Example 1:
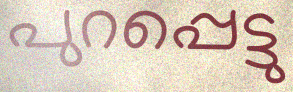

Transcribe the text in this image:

പുറപ്പെട്ടു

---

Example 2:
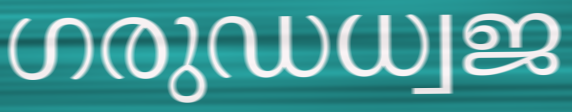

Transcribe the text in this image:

ഗരുഡധ്വജ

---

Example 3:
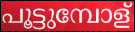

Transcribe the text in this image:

പൂട്ടുമ്പോള്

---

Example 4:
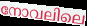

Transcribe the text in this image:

നോവലിലെ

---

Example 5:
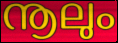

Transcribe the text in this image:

നൂലും